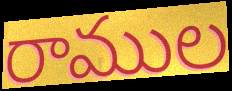
రాముల